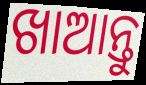
ଖାଆନ୍ତୁ